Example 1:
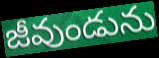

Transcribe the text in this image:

జీవుండును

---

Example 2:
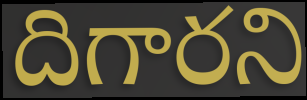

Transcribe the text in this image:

దిగారని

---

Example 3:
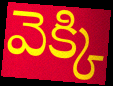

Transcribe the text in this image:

వెక్కి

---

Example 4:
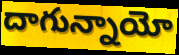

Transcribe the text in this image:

దాగున్నాయో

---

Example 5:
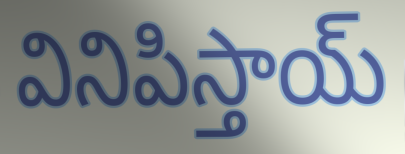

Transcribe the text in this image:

వినిపిస్తాయ్